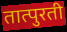
तात्पुरती